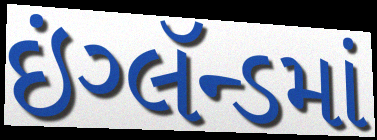
ઇંગ્લૅન્ડમાં